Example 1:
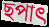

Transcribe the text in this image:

ছপাৎ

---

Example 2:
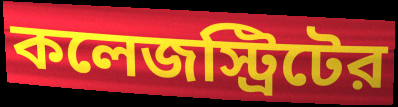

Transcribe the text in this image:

কলেজস্ট্রিটের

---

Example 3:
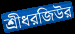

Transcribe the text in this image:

শ্রীধরজিউর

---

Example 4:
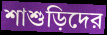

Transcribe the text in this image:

শাশুড়িদের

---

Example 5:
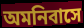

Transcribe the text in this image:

অমনিবাসে